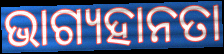
ଭାଗ୍ୟହାନତା